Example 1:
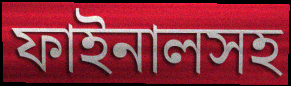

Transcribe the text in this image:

ফাইনালসহ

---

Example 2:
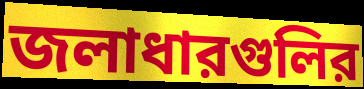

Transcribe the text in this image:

জলাধারগুলির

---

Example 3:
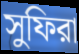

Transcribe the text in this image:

সুফিরা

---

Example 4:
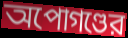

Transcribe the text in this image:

অপোগণ্ডের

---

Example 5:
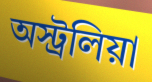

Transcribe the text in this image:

অস্ট্রলিয়া